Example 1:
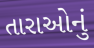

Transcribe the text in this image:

તારાઓનું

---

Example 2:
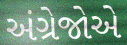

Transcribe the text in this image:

અંગ્રેજોએ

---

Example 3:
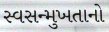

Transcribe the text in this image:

સ્વસન્મુખતાનો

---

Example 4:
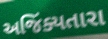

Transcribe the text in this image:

અજિંક્યતારા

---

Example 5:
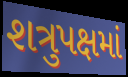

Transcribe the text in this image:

શત્રુપક્ષમાં